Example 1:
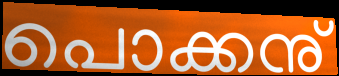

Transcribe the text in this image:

പൊക്കനു്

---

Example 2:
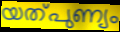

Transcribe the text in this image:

യത്പുണ്യം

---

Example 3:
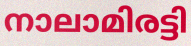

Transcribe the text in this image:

നാലാമിരട്ടി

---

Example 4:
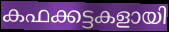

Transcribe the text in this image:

കഫക്കട്ടകളായി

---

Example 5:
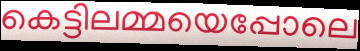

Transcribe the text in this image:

കെട്ടിലമ്മയെപ്പോലെ